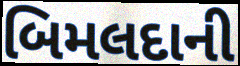
બિમલદાની